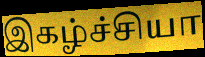
இகழ்ச்சியா